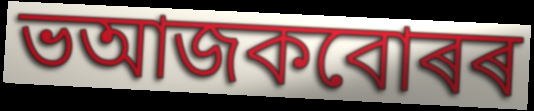
ভআজকবোৰৰ